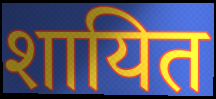
शायित